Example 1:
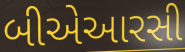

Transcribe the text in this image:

બીએઆરસી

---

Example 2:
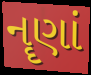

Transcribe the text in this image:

નૄણાં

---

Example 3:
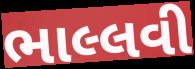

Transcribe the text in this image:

ભાલ્લવી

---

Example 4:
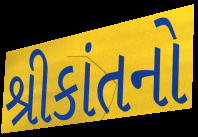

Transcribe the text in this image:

શ્રીકાંતનો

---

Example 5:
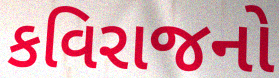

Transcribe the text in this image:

કવિરાજનો